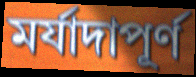
মর্যাদাপূর্ণ